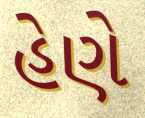
હેણે